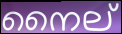
നൈല്